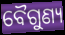
ବୈଗୁଣ୍ୟ